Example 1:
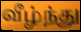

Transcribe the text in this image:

வீழ்ந்து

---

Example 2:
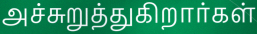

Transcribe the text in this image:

அச்சுறுத்துகிறார்கள்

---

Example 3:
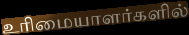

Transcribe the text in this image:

உரிமையாளர்களில்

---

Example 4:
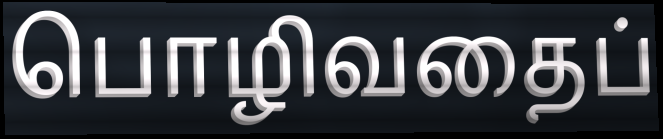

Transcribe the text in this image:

பொழிவதைப்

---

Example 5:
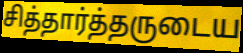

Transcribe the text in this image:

சித்தார்த்தருடைய